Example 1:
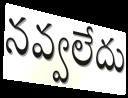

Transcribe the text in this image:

నవ్వలేదు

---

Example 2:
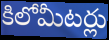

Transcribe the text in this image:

కిలోమీటర్లు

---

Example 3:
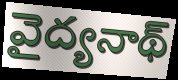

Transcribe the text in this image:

వైద్యనాథ్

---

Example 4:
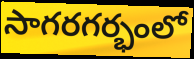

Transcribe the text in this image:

సాగరగర్భంలో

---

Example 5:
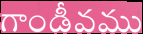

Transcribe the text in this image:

గాండీవము